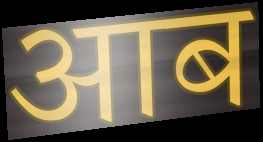
आब